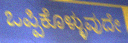
ಒಪ್ಪಿಕೊಳ್ಳುವುದೇ